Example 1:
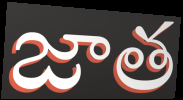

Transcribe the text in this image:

జాత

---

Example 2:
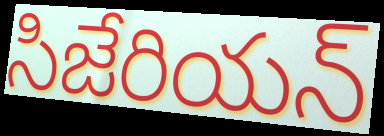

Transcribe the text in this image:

సిజేరియన్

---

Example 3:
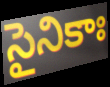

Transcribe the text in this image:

సైనికాః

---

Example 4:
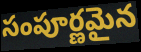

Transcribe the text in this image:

సంపూర్ణమైన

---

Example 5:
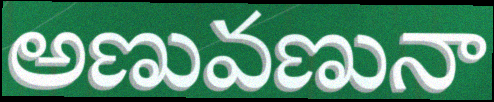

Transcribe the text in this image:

అణువణునా